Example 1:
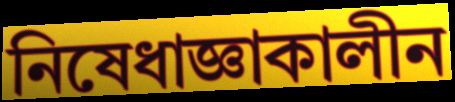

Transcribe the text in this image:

নিষেধাজ্ঞাকালীন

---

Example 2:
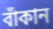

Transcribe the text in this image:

বাঁকান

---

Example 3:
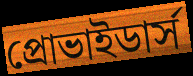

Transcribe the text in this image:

প্রোভাইডার্স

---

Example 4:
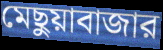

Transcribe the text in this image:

মেছুয়াবাজার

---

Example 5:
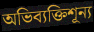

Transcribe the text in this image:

অভিব্যক্তিশূন্য